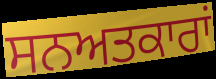
ਸਨਅਤਕਾਰਾਂ